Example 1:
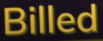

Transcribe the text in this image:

Billed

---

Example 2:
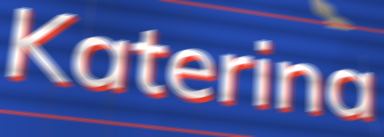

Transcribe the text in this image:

Katerina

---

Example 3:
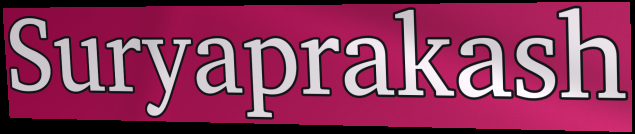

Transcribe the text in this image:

Suryaprakash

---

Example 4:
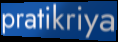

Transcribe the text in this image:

pratikriya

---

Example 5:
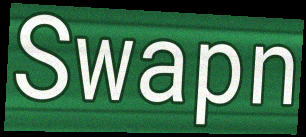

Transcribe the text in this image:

Swapn